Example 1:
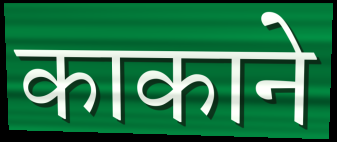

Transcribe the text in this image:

काकाने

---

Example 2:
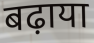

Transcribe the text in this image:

बढ़ाया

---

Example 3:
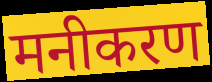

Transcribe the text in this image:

मनीकरण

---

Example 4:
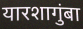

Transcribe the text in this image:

यारशागुंबा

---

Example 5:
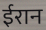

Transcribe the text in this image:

ईरान